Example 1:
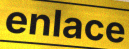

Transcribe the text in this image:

enlace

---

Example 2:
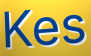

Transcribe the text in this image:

Kes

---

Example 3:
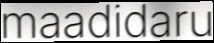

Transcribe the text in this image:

maadidaru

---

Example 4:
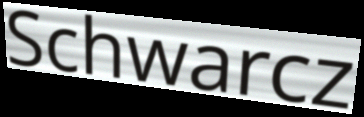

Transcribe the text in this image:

Schwarcz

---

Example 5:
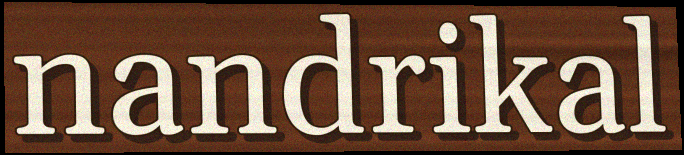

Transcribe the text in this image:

nandrikal